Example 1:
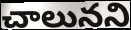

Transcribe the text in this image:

చాలునని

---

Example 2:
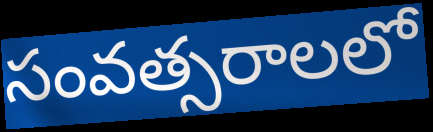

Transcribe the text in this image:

సంవత్సరాలలో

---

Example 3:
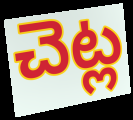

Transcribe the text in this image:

చెట్ల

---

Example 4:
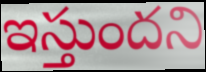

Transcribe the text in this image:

ఇస్తుందని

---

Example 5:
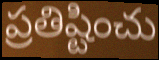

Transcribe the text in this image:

ప్రతిష్టించు